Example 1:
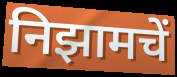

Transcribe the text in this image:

निझामचें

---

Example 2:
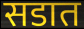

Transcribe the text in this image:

सडात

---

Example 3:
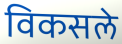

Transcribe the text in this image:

विकसले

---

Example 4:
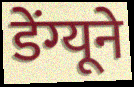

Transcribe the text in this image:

डेंग्यूने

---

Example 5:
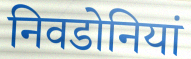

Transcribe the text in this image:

निवडोनियां